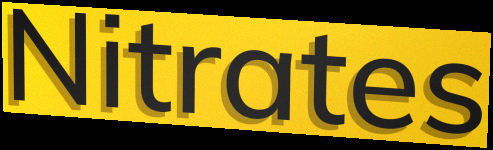
Nitrates